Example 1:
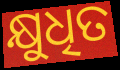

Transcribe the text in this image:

କ୍ଷୁଧିତ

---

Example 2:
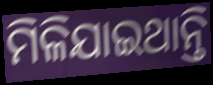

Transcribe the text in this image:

ମିଳିଯାଇଥାନ୍ତି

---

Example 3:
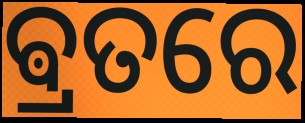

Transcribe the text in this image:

ଵ୍ରତରେ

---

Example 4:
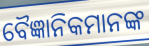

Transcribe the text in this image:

ବୈଜ୍ଞାନିକମାନଙ୍କ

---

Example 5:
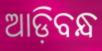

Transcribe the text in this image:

ଆଡ଼ିବନ୍ଧ